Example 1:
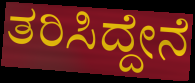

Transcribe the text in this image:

ತರಿಸಿದ್ದೇನೆ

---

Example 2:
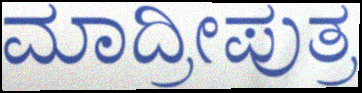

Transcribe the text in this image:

ಮಾದ್ರೀಪುತ್ರ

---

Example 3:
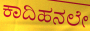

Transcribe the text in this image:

ಕಾದಿಹನಲೇ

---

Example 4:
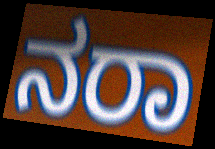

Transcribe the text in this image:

ನರಾ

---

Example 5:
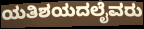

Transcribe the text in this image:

ಯತಿಶಯದಲೈವರು